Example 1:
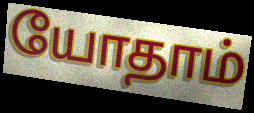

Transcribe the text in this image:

யோதாம்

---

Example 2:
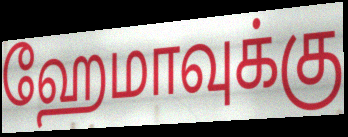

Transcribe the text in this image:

ஹேமாவுக்கு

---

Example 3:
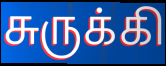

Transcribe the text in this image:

சுருக்கி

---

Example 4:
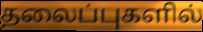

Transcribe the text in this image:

தலைப்புகளில்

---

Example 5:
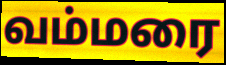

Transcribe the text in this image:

வம்மரை